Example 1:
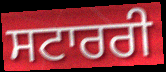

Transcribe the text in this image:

ਸਟਾਰਰੀ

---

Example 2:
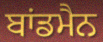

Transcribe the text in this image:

ਬਾਂਡਮੈਨ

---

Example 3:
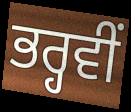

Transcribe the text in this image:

ਭਰ੍ਹਵੀਂ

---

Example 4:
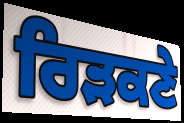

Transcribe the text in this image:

ਰਿੜਕਣੇ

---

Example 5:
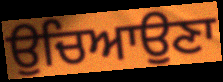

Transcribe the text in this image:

ਉਚਿਆਉਣਾ